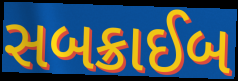
સબક્રાઈબ